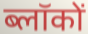
ब्लॉकों